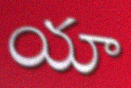
యా